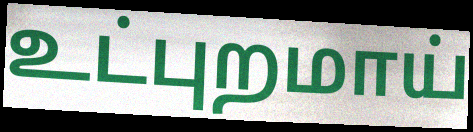
உட்புறமாய்